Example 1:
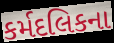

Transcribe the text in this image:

કર્મદલિકના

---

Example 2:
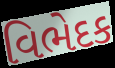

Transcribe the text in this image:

વિભેદક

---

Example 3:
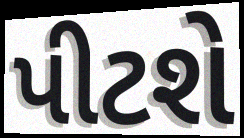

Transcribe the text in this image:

પીટશે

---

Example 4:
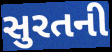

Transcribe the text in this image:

સુરતની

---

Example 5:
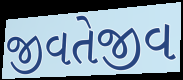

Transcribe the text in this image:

જીવતેજીવ